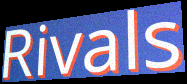
Rivals